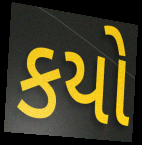
કયો